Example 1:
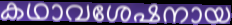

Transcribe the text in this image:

കഥാവശേഷനായ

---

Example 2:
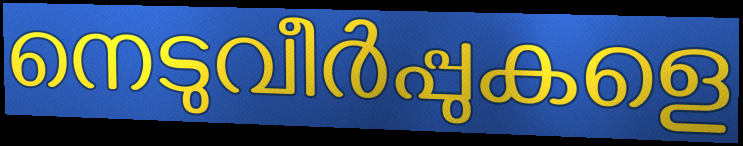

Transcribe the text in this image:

നെടുവീർപ്പുകളെ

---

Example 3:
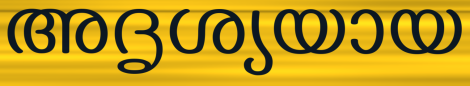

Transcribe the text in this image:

അദൃശ്യയായ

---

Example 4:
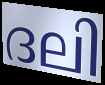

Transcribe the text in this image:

ദലി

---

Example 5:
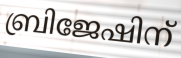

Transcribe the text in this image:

ബ്രിജേഷിന്